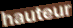
hauteur